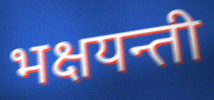
भक्षयन्ती